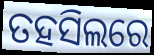
ତହସିଲରେ